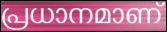
പ്രധാനമാണ്